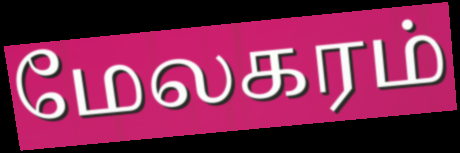
மேலகரம்